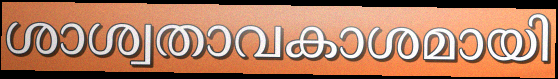
ശാശ്വതാവകാശമായി